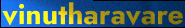
vinutharavare